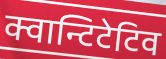
क्वान्टिटेटिव